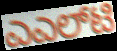
ಎಎಲ್‌ಟಿ